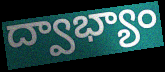
ద్వాభ్యాం